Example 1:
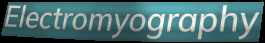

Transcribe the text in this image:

Electromyography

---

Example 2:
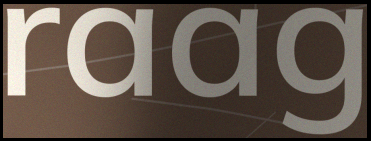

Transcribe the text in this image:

raag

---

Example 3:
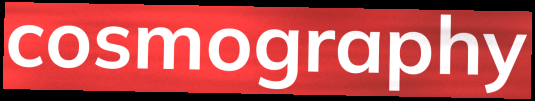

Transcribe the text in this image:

cosmography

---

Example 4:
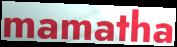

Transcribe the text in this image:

mamatha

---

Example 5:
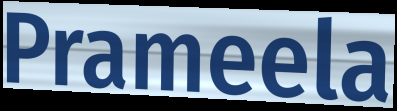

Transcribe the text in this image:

Prameela